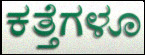
ಕತ್ತೆಗಳೂ